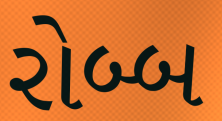
રોબ્બ